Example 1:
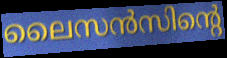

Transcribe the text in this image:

ലൈസൻസിന്റെ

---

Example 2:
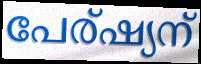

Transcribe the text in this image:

പേര്ഷ്യന്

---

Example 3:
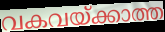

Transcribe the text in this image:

വകവയ്ക്കാത്ത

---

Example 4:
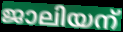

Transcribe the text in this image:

ജാലിയന്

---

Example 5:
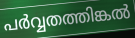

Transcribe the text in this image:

പർവ്വതത്തിങ്കൽ